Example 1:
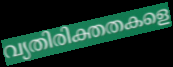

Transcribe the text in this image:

വ്യതിരിക്തതകളെ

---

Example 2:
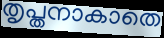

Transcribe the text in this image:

തൃപ്തനാകാതെ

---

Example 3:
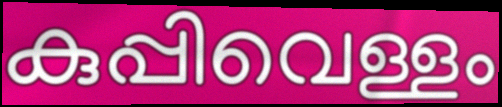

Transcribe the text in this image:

കുപ്പിവെള്ളം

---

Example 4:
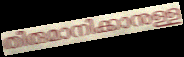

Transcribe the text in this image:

തീരുമാനിക്കാനുള്ള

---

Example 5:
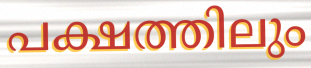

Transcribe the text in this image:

പക്ഷത്തിലും